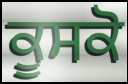
ਕੂਸਕੋ